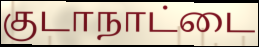
குடாநாட்டை